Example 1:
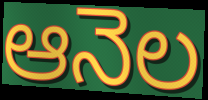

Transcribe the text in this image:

ఆనెల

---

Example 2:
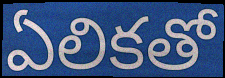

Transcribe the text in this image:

ఏలికతో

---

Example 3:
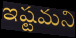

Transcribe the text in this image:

ఇష్టమని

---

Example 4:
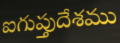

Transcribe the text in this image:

ఐగుప్తుదేశము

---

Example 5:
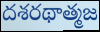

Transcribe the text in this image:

దశరథాత్మజ